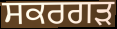
ਸਕਰਗੜ